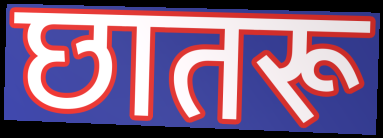
छातरू